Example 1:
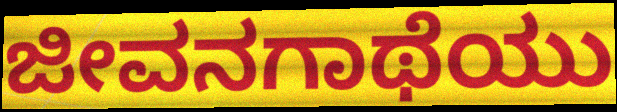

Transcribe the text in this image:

ಜೀವನಗಾಥೆಯು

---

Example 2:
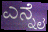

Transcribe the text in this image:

ಎನ್ನೈ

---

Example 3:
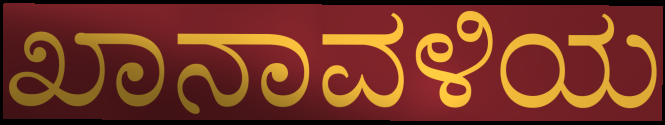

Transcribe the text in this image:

ಖಾನಾವಳಿಯ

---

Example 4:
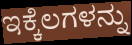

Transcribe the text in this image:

ಇಕ್ಕೆಲಗಳನ್ನು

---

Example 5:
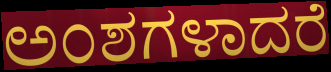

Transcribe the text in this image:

ಅಂಶಗಳಾದರೆ